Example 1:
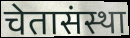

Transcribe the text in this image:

चेतासंस्था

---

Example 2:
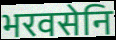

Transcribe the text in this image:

भरवसेनि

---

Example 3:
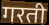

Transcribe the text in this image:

गरती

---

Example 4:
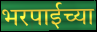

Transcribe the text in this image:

भरपाईच्या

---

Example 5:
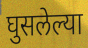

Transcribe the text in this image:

घुसलेल्या